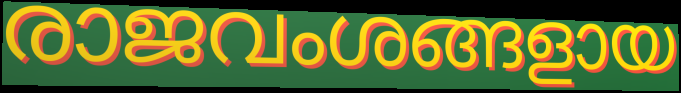
രാജവംശങ്ങളായ